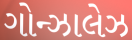
ગોન્ઝાલેઝ